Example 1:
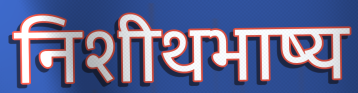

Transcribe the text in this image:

निशीथभाष्य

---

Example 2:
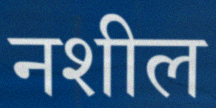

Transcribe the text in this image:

नशील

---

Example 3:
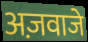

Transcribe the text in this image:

अज़वाजे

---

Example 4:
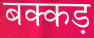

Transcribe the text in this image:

बक्कड़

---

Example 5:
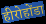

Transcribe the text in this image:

हीरोहोंडा